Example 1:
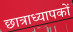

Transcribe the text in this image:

छात्राध्यापकों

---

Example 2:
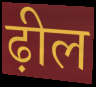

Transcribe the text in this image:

ढ़ील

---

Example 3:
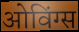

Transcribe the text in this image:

ओविंग्स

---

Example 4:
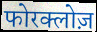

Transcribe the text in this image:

फोरक्लोज़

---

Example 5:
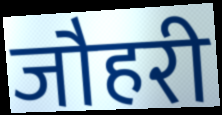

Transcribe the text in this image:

जौहरी